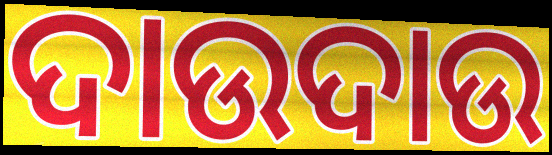
ଦାଉଦାଉ